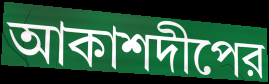
আকাশদীপের